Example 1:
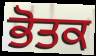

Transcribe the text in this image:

ਭੋਤਕ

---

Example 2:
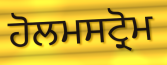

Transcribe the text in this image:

ਹੋਲਮਸਟ੍ਰੋਮ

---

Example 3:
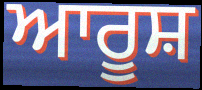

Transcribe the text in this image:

ਆਰੂਸ਼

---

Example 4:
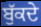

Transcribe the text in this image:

ਬੁੱਕਦੇ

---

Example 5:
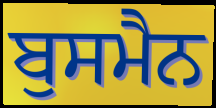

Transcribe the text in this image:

ਬੁਸਮੈਨ